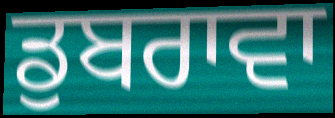
ਡੁਬਰਾਵਾ